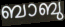
ബാബു